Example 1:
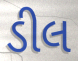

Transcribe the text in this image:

ડીલ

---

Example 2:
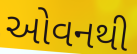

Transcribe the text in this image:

ઓવનથી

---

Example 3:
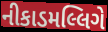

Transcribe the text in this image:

નીકાડમલ્લિગે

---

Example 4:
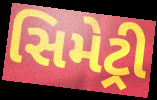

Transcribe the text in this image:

સિમેટ્રી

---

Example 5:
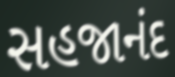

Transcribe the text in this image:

સહજાનંદ